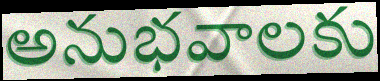
అనుభవాలకు